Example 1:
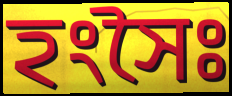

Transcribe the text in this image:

হংসৈঃ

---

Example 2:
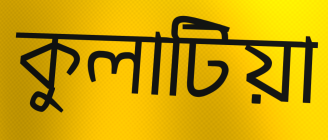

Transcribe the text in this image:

কুলাটিয়া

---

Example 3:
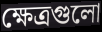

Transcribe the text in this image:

ক্ষেত্রগুলো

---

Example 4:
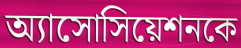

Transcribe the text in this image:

অ্যাসোসিয়েশনকে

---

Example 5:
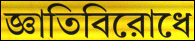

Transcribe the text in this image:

জ্ঞাতিবিরোধে